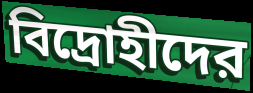
বিদ্রোহীদের